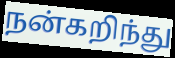
நன்கறிந்து